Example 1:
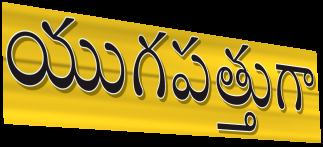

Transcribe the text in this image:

యుగపత్తుగా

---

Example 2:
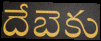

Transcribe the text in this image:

దేబెకు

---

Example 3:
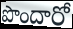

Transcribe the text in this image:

పొందారో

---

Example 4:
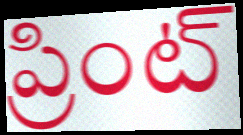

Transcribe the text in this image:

ప్రింట్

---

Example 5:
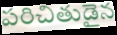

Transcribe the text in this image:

పరిచితుడైన